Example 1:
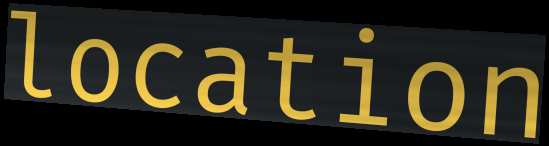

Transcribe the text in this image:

location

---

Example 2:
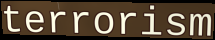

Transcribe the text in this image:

terrorism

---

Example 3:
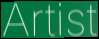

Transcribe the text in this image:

Artist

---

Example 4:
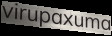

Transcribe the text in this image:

virupaxuma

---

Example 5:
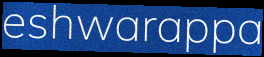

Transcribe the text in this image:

eshwarappa